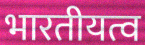
भारतीयत्व